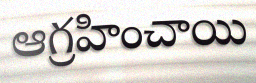
ఆగ్రహించాయి